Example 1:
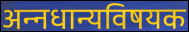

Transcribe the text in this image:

अन्नधान्यविषयक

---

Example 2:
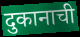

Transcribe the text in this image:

दुकानाची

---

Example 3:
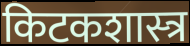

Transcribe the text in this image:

किटकशास्‍त्र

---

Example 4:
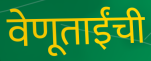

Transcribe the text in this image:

वेणूताईंची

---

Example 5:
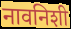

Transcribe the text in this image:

नावनिशी